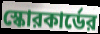
স্কোরকার্ডের